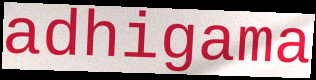
adhigama